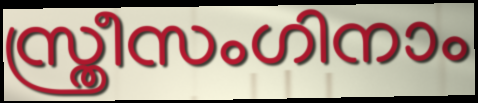
സ്ത്രീസംഗിനാം